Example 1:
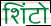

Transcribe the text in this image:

शिंटो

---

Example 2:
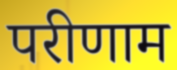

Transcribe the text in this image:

परीणाम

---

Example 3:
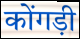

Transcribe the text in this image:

कोंगड़ी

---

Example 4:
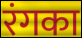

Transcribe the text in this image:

रंगका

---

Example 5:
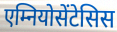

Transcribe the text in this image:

एम्नियोसेंटेसिस